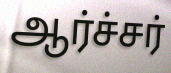
ஆர்ச்சர்